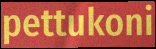
pettukoni